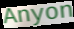
Anyon